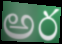
అర